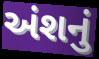
અંશનું